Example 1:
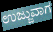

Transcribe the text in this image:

ಉಜ್ಜುವಾಗ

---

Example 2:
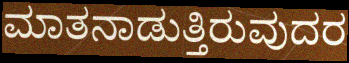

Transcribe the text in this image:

ಮಾತನಾಡುತ್ತಿರುವುದರ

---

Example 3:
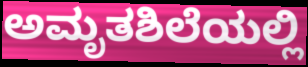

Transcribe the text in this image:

ಅಮೃತಶಿಲೆಯಲ್ಲಿ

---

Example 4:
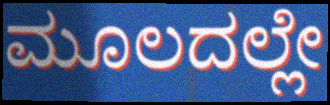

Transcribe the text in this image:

ಮೂಲದಲ್ಲೇ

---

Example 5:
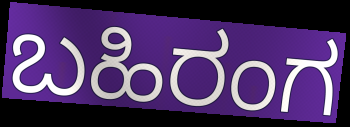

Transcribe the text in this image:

ಬಹಿರಂಗ